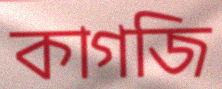
কাগজি